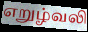
எறுழ்வலி